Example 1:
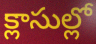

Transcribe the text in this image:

క్లాసుల్లో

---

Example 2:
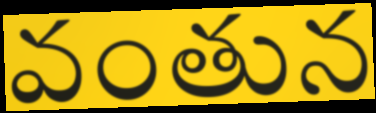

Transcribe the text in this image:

వంతున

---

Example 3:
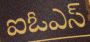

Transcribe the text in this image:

ఐఓఎస్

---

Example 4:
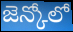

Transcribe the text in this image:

జెన్కోలో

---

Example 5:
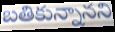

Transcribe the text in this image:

బతికున్నానని